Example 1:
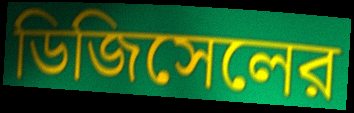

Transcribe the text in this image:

ডিজিসেলের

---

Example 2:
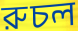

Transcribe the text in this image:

রুচল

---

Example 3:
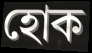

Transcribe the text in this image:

হোক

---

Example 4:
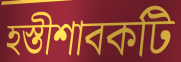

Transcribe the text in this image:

হস্তীশাবকটি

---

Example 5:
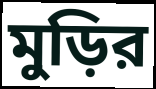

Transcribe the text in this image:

মুড়ির